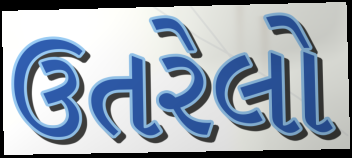
ઉતરેલો